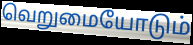
வெறுமையோடும்